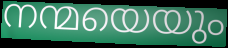
നന്മയെയും